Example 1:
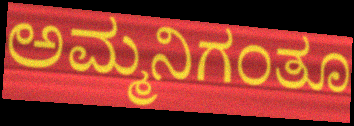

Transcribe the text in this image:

ಅಮ್ಮನಿಗಂತೂ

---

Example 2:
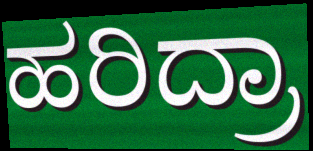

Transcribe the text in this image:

ಹರಿದ್ರಾ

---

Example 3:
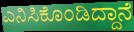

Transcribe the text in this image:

ಎನಿಸಿಕೊಂಡಿದ್ದಾನೆ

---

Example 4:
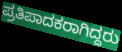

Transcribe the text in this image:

ಪ್ರತಿಪಾದಕರಾಗಿದ್ದರು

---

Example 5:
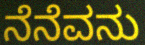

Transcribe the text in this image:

ನೆನೆವನು